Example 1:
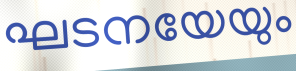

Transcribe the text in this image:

ഘടനയേയും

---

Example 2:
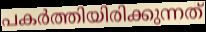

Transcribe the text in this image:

പകർത്തിയിരിക്കുന്നത്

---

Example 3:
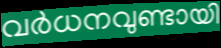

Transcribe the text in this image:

വർധനവുണ്ടായി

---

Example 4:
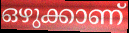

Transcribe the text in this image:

ഒഴുക്കാണ്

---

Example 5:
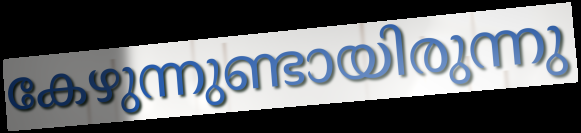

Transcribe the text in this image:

കേഴുന്നുണ്ടായിരുന്നു